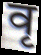
वृ